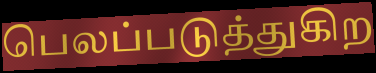
பெலப்படுத்துகிற